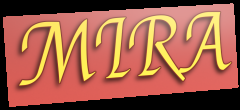
MIRA